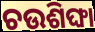
ଚଉଶିଙ୍ଘା